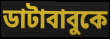
ডাটাবাবুকে